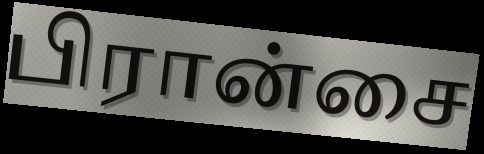
பிரான்சை